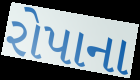
રોપાના